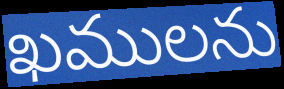
ఖములను